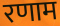
रणाम